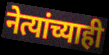
नेत्यांच्याही